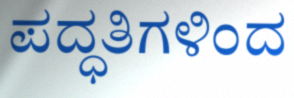
ಪದ್ಧತಿಗಳಿಂದ